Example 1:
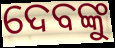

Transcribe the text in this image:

ଦେବଙ୍କୁ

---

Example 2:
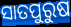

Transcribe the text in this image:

ସାତପୁରୁଷ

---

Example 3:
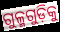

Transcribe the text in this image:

ଗୁଳ୍ମଗୁଡ଼ିକୁ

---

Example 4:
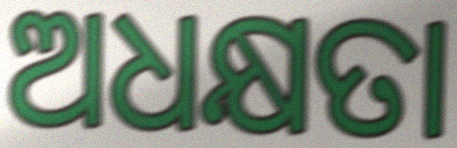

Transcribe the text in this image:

ଅଧକ୍ଷତା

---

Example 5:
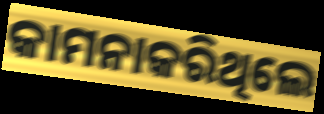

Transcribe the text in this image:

କାମନାକରିଥିଲେ